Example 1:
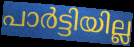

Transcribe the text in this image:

പാർട്ടിയില്ല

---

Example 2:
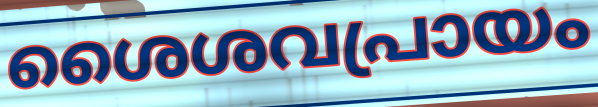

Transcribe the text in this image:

ശൈശവപ്രായം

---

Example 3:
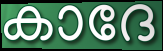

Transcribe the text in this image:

കാദേ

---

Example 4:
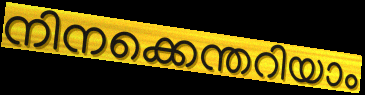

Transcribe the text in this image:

നിനക്കെന്തറിയാം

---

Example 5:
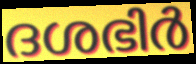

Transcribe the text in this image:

ദശഭിർ